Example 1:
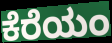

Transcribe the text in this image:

ಕೆರೆಯಂ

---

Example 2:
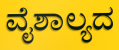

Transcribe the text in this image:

ವೈಶಾಲ್ಯದ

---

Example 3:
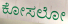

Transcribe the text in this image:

ಕೋಸಲೋ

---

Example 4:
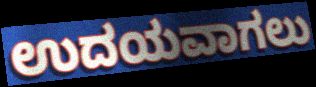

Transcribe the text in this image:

ಉದಯವಾಗಲು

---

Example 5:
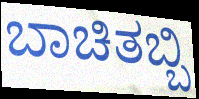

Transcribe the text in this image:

ಬಾಚಿತಬ್ಬಿ